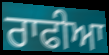
ਰਾਫੀਆ